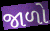
જાળો